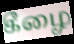
கீழை